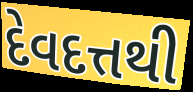
દેવદત્તથી